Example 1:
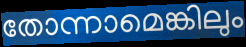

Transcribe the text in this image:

തോന്നാമെങ്കിലും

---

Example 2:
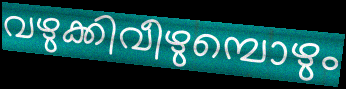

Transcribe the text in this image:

വഴുക്കിവീഴുമ്പൊഴും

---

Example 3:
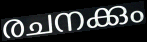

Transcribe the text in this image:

രചനക്കും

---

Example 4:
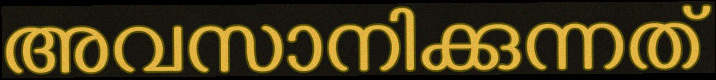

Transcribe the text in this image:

അവസാനിക്കുന്നത്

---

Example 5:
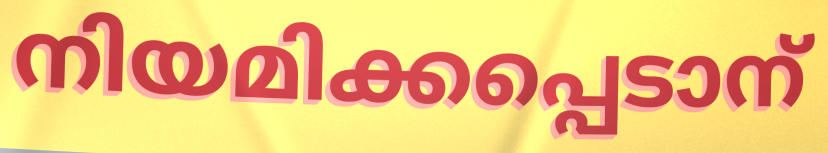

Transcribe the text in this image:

നിയമിക്കപ്പെടാന്